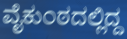
ವೈಕುಂಠದಲ್ಲಿದ್ದ